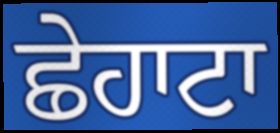
ਛੇਹਾਟਾ